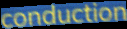
conduction